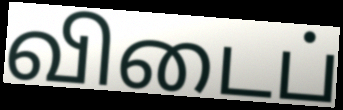
விடைப்